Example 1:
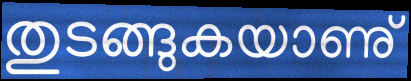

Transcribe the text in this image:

തുടങ്ങുകയാണു്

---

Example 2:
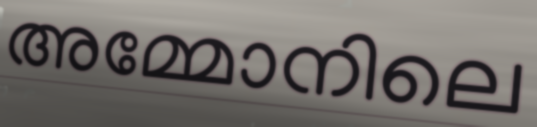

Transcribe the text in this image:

അമ്മോനിലെ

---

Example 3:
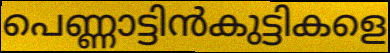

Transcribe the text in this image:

പെണ്ണാട്ടിൻകുട്ടികളെ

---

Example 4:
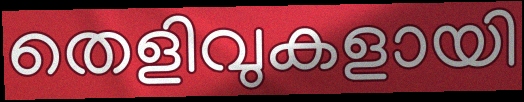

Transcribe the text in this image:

തെളിവുകളായി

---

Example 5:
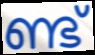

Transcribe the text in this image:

ണ്ട്